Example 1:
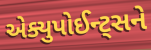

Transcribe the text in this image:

એક્યુપોઈન્ટ્સને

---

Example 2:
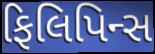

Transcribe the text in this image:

ફિલિપિન્સ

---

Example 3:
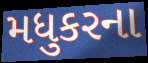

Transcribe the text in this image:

મધુકરના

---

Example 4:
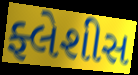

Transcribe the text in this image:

ફ્લેશીસ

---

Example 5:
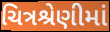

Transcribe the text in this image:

ચિત્રશ્રેણીમાં